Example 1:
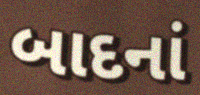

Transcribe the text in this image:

બાદનાં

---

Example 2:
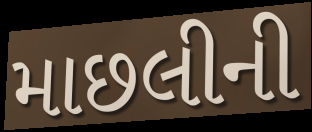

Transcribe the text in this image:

માછલીની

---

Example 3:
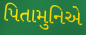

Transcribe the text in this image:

પિતામુનિએ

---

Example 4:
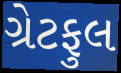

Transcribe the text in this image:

ગ્રેટફુલ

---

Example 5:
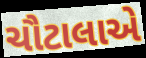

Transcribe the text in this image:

ચૌટાલાએ